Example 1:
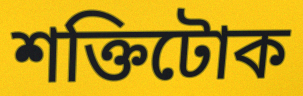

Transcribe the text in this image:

শক্তিটোক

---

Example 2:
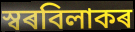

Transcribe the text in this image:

স্বৰবিলাকৰ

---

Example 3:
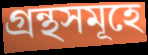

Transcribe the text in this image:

গ্ৰন্থসমূহে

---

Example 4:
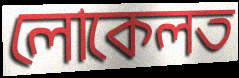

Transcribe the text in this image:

লোকেলত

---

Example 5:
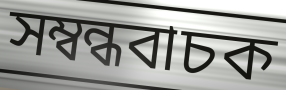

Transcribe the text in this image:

সম্বন্ধবাচক